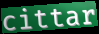
cittar